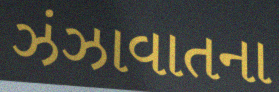
ઝંઝાવાતના